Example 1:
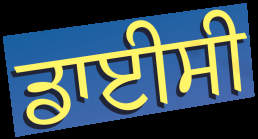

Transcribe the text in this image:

ਡਾਈਸੀ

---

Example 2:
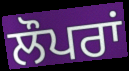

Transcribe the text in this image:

ਲੌਪਰਾਂ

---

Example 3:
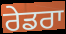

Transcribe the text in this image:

ਰੇਡਰਾ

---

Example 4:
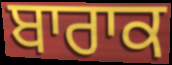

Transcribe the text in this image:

ਬਾਰਾਕ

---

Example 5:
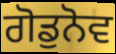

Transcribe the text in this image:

ਗੋਡੁਨੋਵ